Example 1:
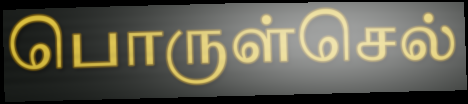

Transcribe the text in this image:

பொருள்செல்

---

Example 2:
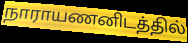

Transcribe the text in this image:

நாராயணனிடத்தில்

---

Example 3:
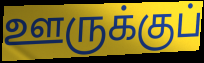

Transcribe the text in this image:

ஊருக்குப்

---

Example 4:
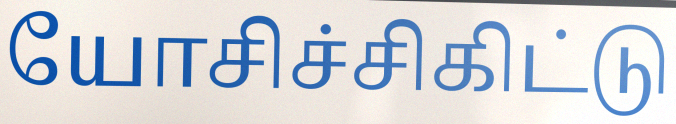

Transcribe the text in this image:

யோசிச்சிகிட்டு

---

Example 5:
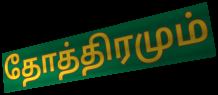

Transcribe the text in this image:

தோத்திரமும்